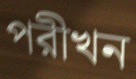
পরীখন